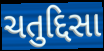
ચતુદ્દિસા